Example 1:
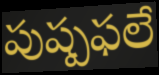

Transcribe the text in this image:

పుష్పఫలే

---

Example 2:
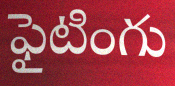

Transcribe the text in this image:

ఫైటింగు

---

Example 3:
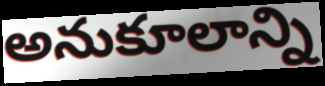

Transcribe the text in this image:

అనుకూలాన్ని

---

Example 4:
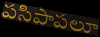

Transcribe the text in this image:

పసిపాపలూ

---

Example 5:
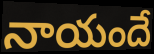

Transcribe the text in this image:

నాయందే